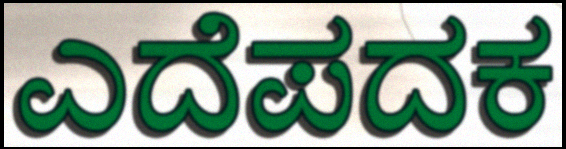
ಎದೆಪದಕ